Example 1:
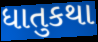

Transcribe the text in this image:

ધાતુકથા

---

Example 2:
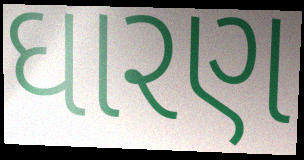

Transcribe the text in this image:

ઘારણ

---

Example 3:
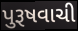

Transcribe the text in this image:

પુરૂષવાચી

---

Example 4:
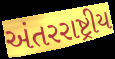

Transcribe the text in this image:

અંતરરાષ્ટ્રીય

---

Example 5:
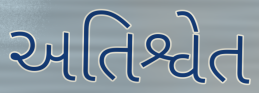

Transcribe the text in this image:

અતિશ્વેત